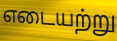
எடையற்று